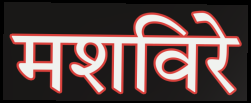
मशविरे